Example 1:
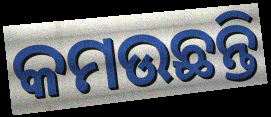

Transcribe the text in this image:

କମଉଛନ୍ତି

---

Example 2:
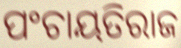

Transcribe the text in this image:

ପଂଚାୟତିରାଜ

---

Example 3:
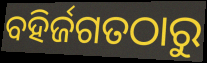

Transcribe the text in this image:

ବହିର୍ଜଗତଠାରୁ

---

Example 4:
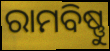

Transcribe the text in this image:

ରାମବିଷ୍ଣୁ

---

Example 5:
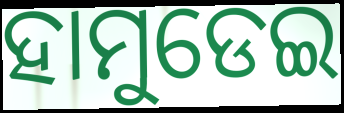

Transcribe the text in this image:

ହାମୁଡେଇ